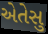
એતેસુ